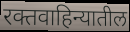
रक्तवाहिन्यातील